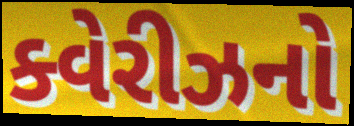
ક્વેરીઝનો